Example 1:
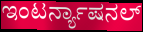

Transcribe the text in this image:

ಇಂಟರ್ನ್ಯಾಷನಲ್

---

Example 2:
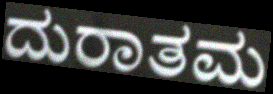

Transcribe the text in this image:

ದುರಾತಮ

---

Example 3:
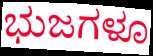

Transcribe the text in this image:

ಭುಜಗಳೂ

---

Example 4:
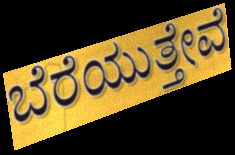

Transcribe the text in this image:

ಬೆರೆಯುತ್ತೇವೆ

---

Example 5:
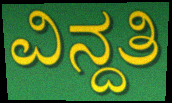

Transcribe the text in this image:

ವಿನ್ದತಿ